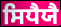
ਸਿਧੈਯੈ